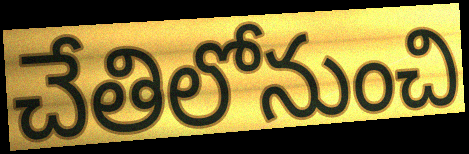
చేతిలోనుంచి